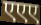
एएए